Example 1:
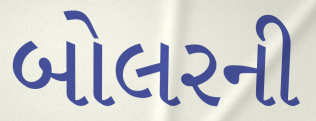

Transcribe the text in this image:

બોલરની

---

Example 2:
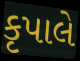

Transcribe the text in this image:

કૃપાલે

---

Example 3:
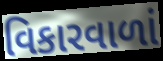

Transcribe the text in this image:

વિકારવાળાં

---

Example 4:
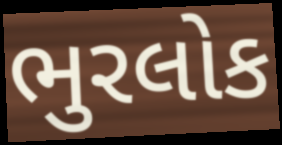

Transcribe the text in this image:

ભુરલોક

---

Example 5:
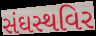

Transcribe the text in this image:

સંઘસ્થવિર